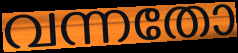
വന്നതോ